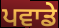
ਪਵਾਡੇ